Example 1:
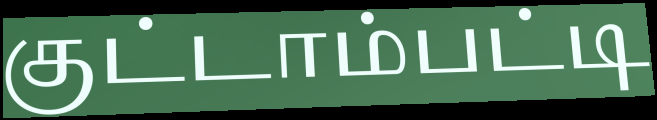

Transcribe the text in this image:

குட்டாம்பட்டி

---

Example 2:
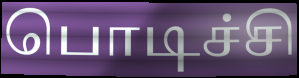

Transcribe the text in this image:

பொடிச்சி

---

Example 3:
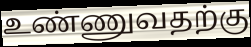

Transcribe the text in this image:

உண்ணுவதற்கு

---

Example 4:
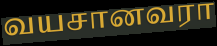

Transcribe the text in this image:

வயசானவரா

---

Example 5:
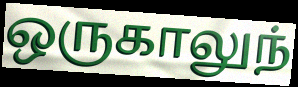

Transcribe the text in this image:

ஒருகாலுந்